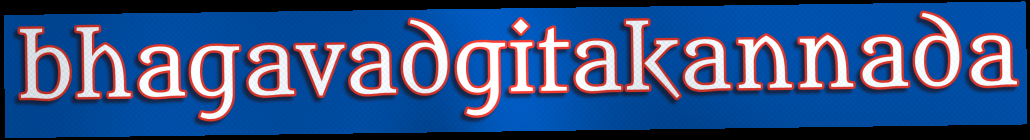
bhagavadgitakannada